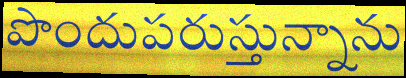
పొందుపరుస్తున్నాను